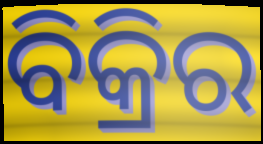
ବିକ୍ରିର